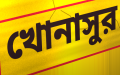
খোনাসুর